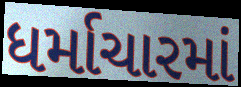
ધર્માચારમાં